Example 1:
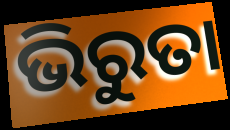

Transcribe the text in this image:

ଭିରୁତା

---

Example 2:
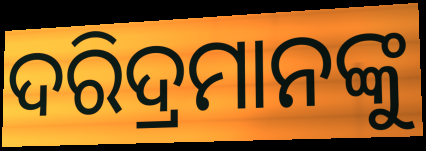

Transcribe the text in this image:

ଦରିଦ୍ରମାନଙ୍କୁ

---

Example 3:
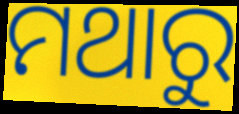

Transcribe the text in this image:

ମଥାରୁ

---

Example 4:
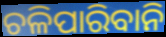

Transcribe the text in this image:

ଚଳିପାରିବାନି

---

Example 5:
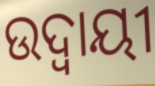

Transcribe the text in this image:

ଉଦ୍ବାୟୀ